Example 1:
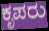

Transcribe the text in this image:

ಕೃಪರು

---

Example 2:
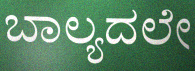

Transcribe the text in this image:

ಬಾಲ್ಯದಲೇ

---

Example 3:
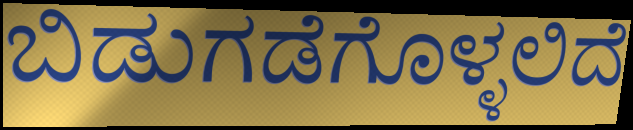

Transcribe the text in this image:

ಬಿಡುಗಡೆಗೊಳ್ಳಲಿದೆ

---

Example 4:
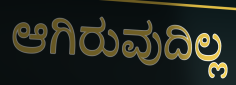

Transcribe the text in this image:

ಆಗಿರುವುದಿಲ್ಲ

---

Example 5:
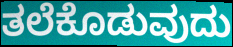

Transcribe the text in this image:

ತಲೆಕೊಡುವುದು